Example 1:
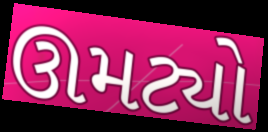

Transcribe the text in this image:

ઊમટ્યો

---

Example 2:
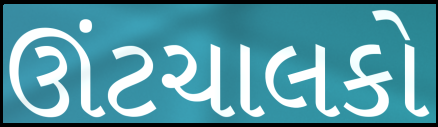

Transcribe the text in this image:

ઊંટચાલકો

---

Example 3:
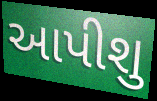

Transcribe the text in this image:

આપીશુ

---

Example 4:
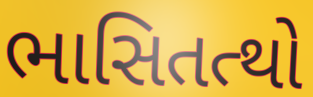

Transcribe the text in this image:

ભાસિતત્થો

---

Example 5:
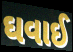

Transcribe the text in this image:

ઘવાઈ